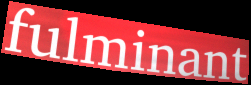
fulminant